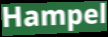
Hampel